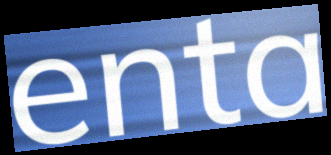
enta